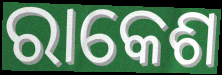
ରାକେଶ